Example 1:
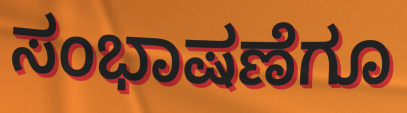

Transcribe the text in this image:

ಸಂಭಾಷಣೆಗೂ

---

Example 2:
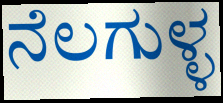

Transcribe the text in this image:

ನೆಲಗುಳ್ಳ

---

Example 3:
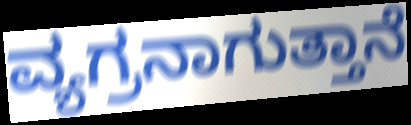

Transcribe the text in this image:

ವ್ಯಗ್ರನಾಗುತ್ತಾನೆ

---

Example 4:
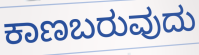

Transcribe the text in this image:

ಕಾಣಬರುವುದು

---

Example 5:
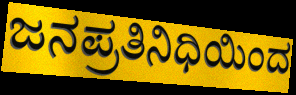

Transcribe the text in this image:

ಜನಪ್ರತಿನಿಧಿಯಿಂದ